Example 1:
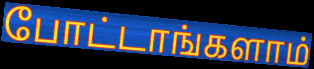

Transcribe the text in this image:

போட்டாங்களாம்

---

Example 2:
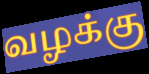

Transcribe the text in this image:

வழக்கு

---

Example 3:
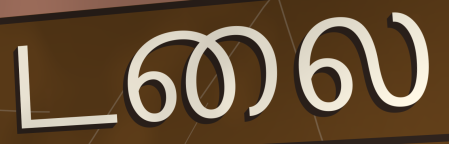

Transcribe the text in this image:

டலை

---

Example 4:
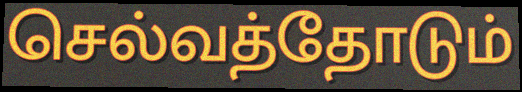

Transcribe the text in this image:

செல்வத்தோடும்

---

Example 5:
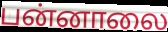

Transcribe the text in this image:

பன்னாலை